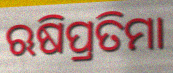
ଋଷିପ୍ରତିମା